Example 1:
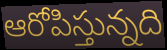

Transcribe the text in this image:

ఆరోపిస్తున్నది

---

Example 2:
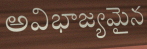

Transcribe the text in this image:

అవిభాజ్యమైన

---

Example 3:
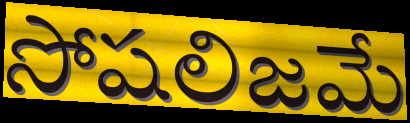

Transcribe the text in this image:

సోషలిజమే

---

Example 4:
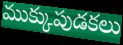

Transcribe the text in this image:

ముక్కుపుడకలు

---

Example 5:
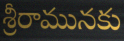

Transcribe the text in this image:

శ్రీరామునకు